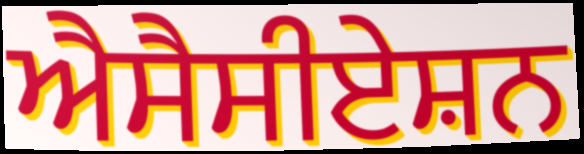
ਐਸੈਸੀਏਸ਼ਨ